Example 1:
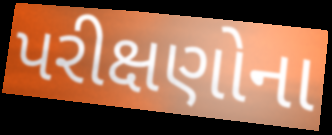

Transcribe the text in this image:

પરીક્ષણોના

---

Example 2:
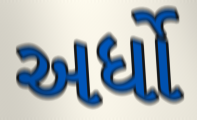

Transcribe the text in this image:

અર્ધો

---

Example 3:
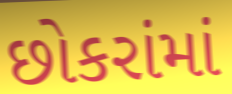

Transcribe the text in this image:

છોકરાંમાં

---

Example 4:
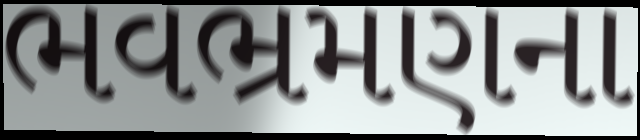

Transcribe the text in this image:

ભવભ્રમણના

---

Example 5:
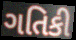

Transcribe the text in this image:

ગતિકી